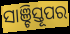
ସାଞ୍ଚିସ୍ତୂପର